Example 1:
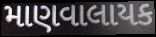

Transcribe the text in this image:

માણવાલાયક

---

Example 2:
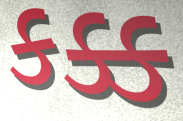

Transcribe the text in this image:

કક્ક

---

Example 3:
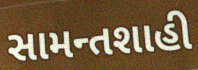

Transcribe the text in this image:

સામન્તશાહી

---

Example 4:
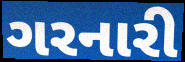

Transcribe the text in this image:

ગરનારી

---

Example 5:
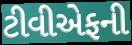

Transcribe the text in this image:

ટીવીએફની